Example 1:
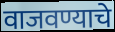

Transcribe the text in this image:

वाजवण्याचे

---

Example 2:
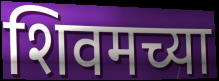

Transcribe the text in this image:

शिवमच्या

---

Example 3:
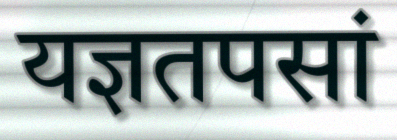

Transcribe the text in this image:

यज्ञतपसां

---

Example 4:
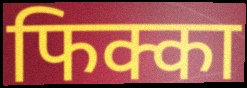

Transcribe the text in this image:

फिक्का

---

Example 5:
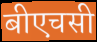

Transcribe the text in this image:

बीएचसी